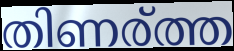
തിണര്ത്ത